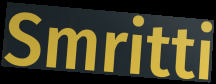
Smritti